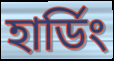
হার্ডিং